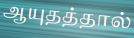
ஆயுதத்தால்